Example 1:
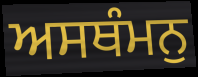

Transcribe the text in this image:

ਅਸਥੰਮਨੁ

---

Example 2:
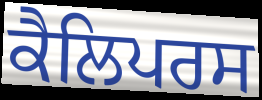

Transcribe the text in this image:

ਕੈਲਿਪਰਸ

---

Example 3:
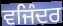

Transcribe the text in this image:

ਵਜਿੰਦਰ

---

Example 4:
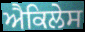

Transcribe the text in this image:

ਐਕਿਲੇਸ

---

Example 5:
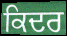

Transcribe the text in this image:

ਕਿਦਰ